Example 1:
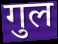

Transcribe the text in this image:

गुल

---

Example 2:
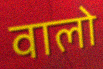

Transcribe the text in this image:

वालो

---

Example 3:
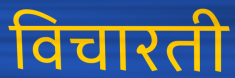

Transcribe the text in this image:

विचारती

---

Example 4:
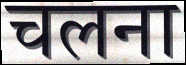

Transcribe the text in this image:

चलना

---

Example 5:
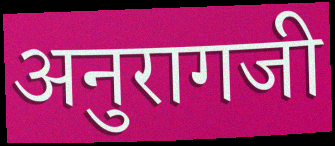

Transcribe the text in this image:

अनुरागजी